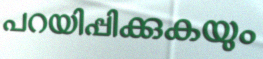
പറയിപ്പിക്കുകയും